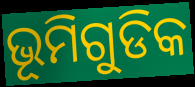
ଭୂମିଗୁଡିକ